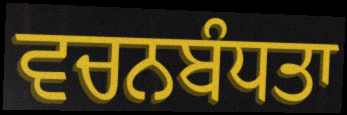
ਵਚਨਬੰਧਤਾ